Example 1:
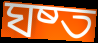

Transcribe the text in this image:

ঘষ্ত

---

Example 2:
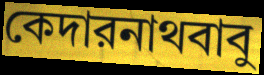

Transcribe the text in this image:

কেদারনাথবাবু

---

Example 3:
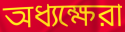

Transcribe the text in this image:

অধ্যক্ষেরা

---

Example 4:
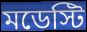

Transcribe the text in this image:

মডেস্টি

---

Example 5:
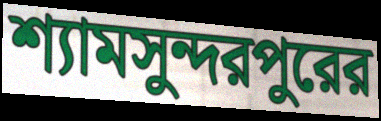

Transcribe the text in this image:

শ্যামসুন্দরপুরের